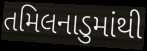
તમિલનાડુમાંથી